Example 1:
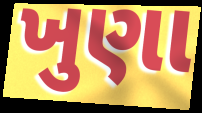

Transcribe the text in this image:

ખુણા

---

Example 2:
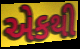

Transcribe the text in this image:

એકથી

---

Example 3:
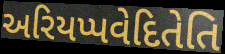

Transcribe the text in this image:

અરિયપ્પવેદિતેતિ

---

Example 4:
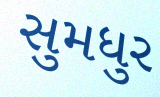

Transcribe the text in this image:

સુમધુર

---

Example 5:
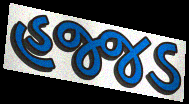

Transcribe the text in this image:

હજ્જડ